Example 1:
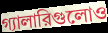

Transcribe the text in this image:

গ্যালারিগুলোও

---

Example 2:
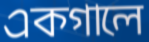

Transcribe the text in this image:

একগালে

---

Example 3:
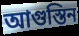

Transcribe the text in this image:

আগুস্তিন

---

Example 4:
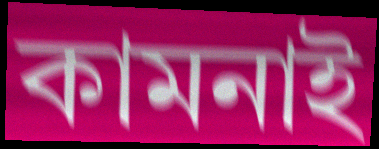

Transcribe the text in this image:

কামনাই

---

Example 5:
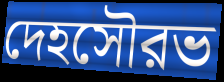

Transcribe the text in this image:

দেহসৌরভ